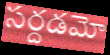
సర్దడమో